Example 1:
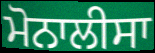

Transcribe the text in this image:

ਮੋਨਾਲੀਸਾ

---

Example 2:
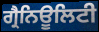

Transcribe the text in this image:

ਗ੍ਰੈਨਿਊਲਿਟੀ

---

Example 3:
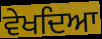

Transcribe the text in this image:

ਵੇਖਦਿਆ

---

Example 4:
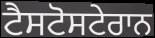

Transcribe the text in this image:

ਟੈਸਟੋਸਟੇਰਾਨ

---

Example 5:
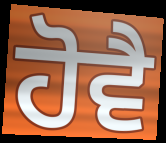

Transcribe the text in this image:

ਹੋਵੈ